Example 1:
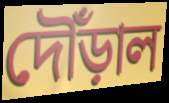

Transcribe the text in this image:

দৌঁড়াল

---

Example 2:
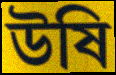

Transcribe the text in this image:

উষি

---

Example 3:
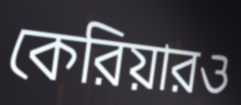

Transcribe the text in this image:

কেরিয়ারও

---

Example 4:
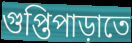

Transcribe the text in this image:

গুপ্তিপাড়াতে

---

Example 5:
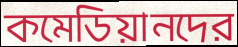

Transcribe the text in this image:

কমেডিয়ানদের